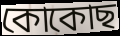
কোকোছ